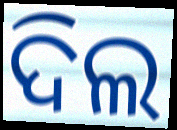
ଦିଲ